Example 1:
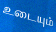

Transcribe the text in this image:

உடையும்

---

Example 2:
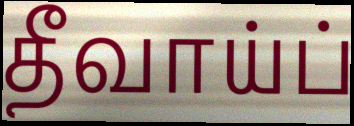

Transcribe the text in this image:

தீவாய்ப்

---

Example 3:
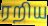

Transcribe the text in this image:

ரறிய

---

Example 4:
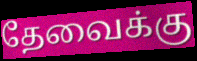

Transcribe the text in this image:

தேவைக்கு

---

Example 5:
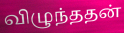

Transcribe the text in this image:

விழுந்ததன்